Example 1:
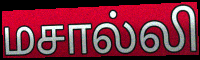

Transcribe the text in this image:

மசால்லி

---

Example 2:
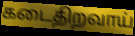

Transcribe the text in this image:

கடைதிறவாய்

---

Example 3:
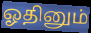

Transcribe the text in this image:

ஓதினும்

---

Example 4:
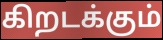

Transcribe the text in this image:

கிறடக்கும்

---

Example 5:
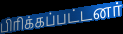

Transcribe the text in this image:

பிரிக்கப்பட்டனர்